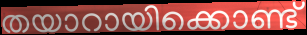
തയാറായിക്കൊണ്ട്